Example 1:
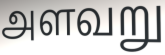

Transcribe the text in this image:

அளவறு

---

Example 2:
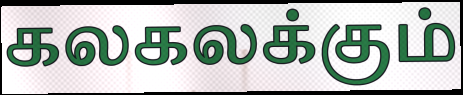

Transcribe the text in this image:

கலகலக்கும்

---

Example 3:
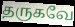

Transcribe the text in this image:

தருகவே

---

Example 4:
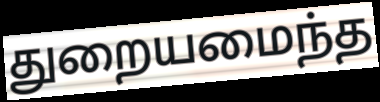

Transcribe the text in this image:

துறையமைந்த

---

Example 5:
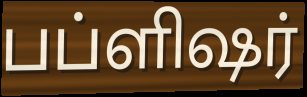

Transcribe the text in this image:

பப்ளிஷர்